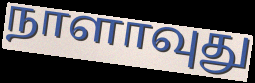
நாளாவுது